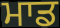
ਮਾਡ